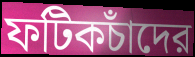
ফটিকচাঁদের